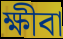
ক্ষীবা